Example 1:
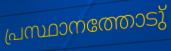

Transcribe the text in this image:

പ്രസ്ഥാനത്തോടു്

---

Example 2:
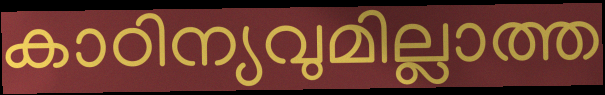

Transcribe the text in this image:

കാഠിന്യവുമില്ലാത്ത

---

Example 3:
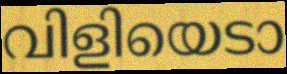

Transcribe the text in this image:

വിളിയെടാ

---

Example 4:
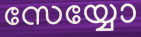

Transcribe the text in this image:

സേയ്യോ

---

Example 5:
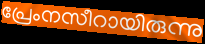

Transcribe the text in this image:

പ്രേംനസീറായിരുന്നു